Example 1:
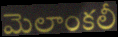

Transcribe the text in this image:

మెలాంకలీ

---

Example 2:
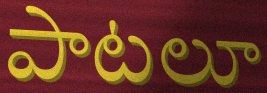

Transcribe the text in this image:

పాటలూ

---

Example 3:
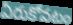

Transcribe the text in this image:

ఏరుకోవటం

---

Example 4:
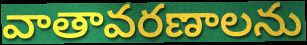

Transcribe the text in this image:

వాతావరణాలను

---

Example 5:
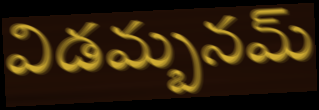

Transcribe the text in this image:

విడమ్బనమ్